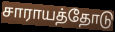
சாராயத்தோடு